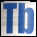
Tb